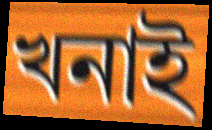
খনাই